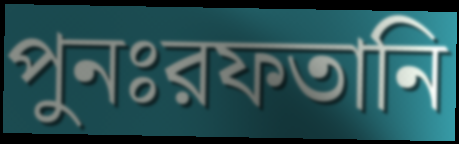
পুনঃরফতানি